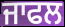
ਜਾਫਲ